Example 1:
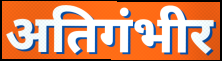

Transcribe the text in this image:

अतिगंभीर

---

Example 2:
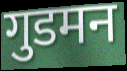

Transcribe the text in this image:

गुडमन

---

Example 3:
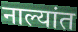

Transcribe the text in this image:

नाल्यांत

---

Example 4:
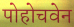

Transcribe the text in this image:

पोहोचवेन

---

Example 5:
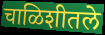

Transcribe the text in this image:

चाळिशीतले